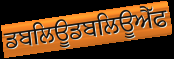
ਡਬਲਿਊਡਬਲਿਊਐੱਫ